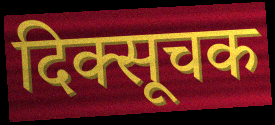
दिक्सूचक